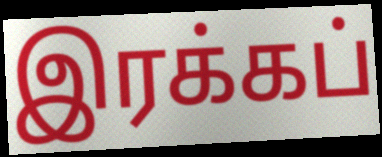
இரக்கப்